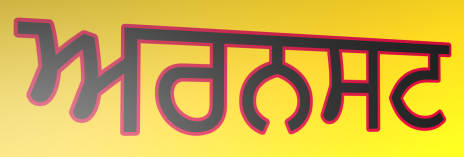
ਅਰਨਸਟ